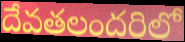
దేవతలందరిలో